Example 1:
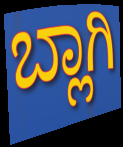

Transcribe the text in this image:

ಬ್ಲಾಗಿ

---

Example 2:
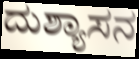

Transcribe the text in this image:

ದುಶ್ಯಾಸನ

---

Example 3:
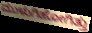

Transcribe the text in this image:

ಮುಳುಗಿಹೋಗಿತ್ತು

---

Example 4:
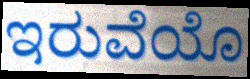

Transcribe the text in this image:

ಇರುವೆಯೊ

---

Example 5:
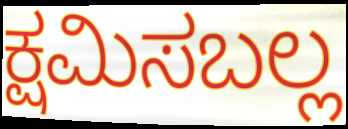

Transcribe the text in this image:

ಕ್ಷಮಿಸಬಲ್ಲ